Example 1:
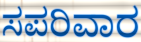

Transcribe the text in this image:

ಸಪರಿವಾರ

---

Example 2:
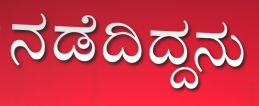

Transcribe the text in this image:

ನಡೆದಿದ್ದನು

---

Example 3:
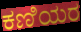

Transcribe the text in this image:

ಕಣಿಯರ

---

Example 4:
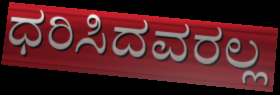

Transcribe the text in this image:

ಧರಿಸಿದವರಲ್ಲ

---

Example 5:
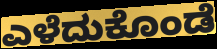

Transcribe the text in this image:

ಎಳೆದುಕೊಂಡೆ